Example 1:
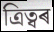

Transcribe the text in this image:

ত্ৰিত্বৰ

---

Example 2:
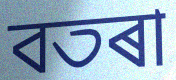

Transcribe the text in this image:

বতৰা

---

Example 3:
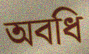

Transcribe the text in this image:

অবধি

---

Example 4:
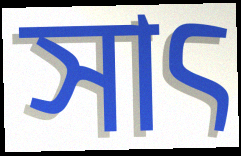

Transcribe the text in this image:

সাৎ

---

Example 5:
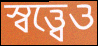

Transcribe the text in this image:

স্বত্ত্বেও